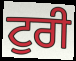
ਟੁਰੀ